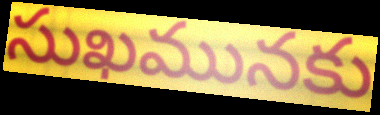
సుఖమునకు